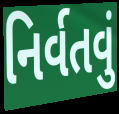
નિર્વતવું